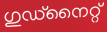
ഗുഡ്നൈറ്റ്